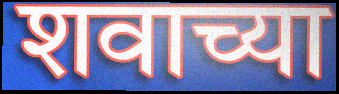
शवाच्या